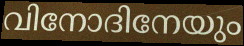
വിനോദിനേയും